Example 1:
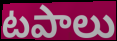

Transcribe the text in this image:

టపాలు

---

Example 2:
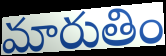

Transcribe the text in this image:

మారుతిం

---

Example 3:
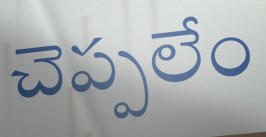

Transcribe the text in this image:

చెప్పలేం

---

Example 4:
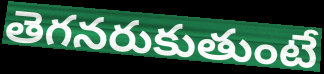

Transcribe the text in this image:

తెగనరుకుతుంటే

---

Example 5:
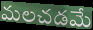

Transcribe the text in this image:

మలచడమే